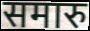
समारु